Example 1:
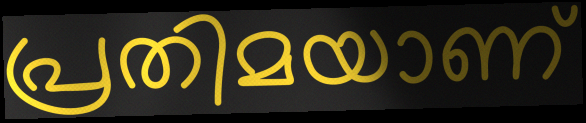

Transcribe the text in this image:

പ്രതിമയാണ്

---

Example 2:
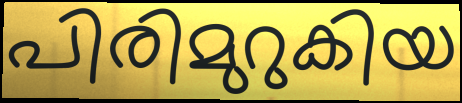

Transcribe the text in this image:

പിരിമുറുകിയ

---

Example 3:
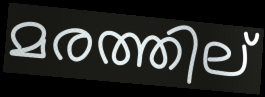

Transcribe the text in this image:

മരത്തില്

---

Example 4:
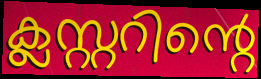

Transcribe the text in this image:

ക്ലസ്റ്ററിന്റെ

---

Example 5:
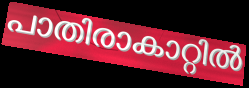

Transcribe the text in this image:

പാതിരാകാറ്റിൽ